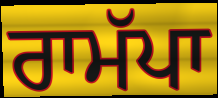
ਰਾਮੱਪਾ